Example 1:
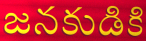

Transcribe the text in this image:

జనకుడికి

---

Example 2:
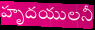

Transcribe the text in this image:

హృదయులనీ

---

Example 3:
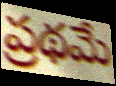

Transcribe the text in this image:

ప్రథమే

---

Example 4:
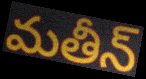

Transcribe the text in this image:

మతీన్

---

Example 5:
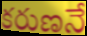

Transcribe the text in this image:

కరుణనే